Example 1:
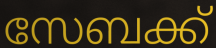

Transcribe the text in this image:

സേബക്ക്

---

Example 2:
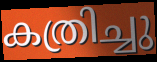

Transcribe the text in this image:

കത്രിച്ചു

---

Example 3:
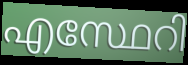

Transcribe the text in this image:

എസ്ഥേറി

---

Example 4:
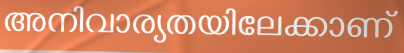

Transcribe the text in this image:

അനിവാര്യതയിലേക്കാണ്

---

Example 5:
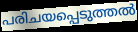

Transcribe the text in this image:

പരിചയപ്പെടുത്തൽ